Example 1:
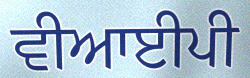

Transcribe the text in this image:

ਵੀਆਈਪੀ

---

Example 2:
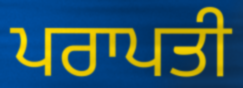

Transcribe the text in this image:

ਪਰਾਪਤੀ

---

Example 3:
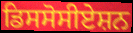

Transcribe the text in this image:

ਡਿਸਸੋਸੀਏਸ਼ਨ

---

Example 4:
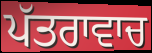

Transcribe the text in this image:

ਪੱਤਰਾਵਾਚ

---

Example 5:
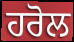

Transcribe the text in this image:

ਹਰੋਲ